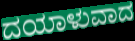
ದಯಾಳುವಾದ